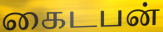
கைடபன்